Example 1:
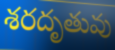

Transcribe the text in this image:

శరదృతువు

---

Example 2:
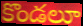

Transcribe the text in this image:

కొండలూ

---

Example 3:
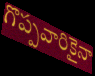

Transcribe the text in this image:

గొప్పవారికైనా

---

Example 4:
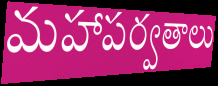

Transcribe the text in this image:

మహాపర్వతాలు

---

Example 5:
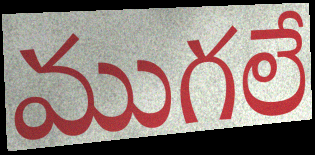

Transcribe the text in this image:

ముగలే